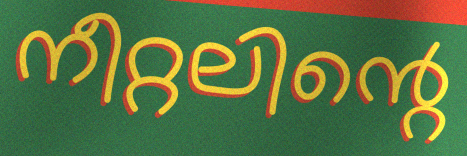
നീറ്റലിന്റെ